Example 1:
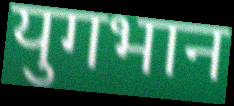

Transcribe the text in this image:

युगभान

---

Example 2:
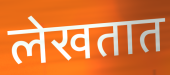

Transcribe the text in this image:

लेखतात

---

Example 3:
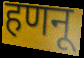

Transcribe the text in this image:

हणनू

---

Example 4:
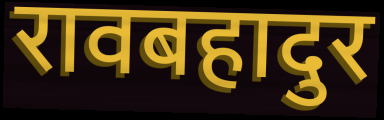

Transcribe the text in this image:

रावबहादुर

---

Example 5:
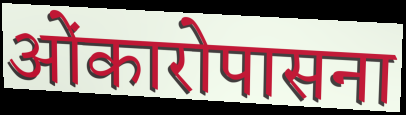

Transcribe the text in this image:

ओंकारोपासना